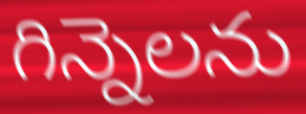
గిన్నెలను